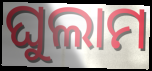
ଘୁଲାମ